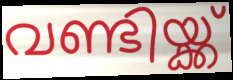
വണ്ടിയ്ക്ക്